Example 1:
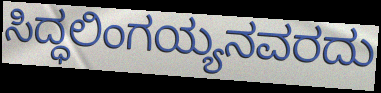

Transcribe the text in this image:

ಸಿದ್ಧಲಿಂಗಯ್ಯನವರದು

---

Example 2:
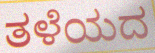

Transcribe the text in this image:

ತಳೆಯದ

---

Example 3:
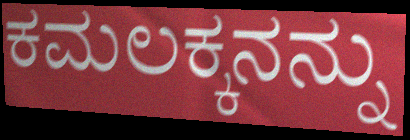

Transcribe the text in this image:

ಕಮಲಕ್ಕನನ್ನು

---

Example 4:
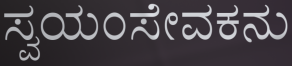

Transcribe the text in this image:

ಸ್ವಯಂಸೇವಕನು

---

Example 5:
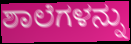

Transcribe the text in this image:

ಶಾಲೆಗಳನ್ನು